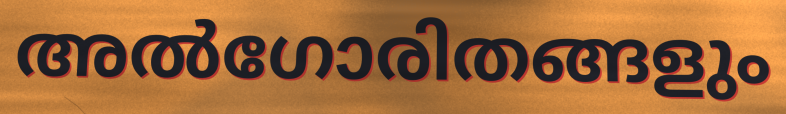
അൽഗോരിതങ്ങളും